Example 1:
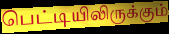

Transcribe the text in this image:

பெட்டியிலிருக்கும்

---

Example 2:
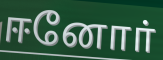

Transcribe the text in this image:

ஈனோர்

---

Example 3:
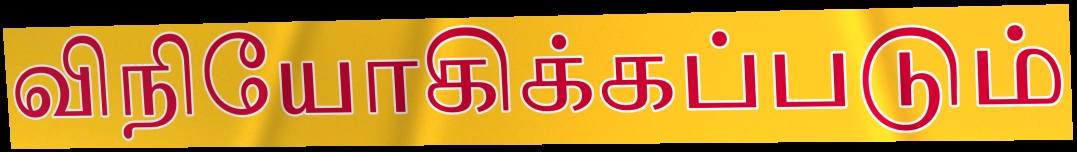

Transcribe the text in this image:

விநியோகிக்கப்படும்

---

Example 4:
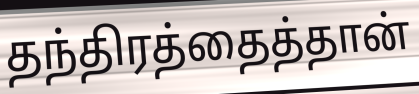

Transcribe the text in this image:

தந்திரத்தைத்தான்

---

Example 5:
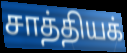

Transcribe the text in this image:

சாத்தியக்